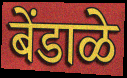
बेंडाळे